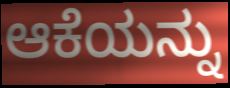
ಆಕೆಯನ್ನು